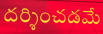
దర్శించడమే